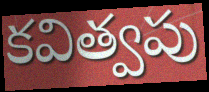
కవిత్వపు